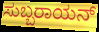
ಸುಬ್ಬರಾಯನ್